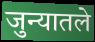
जुन्यातले